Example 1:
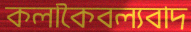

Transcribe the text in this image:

কলাকৈবল্যবাদ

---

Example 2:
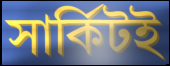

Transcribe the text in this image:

সার্কিটই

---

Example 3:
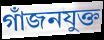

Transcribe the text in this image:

গাঁজনযুক্ত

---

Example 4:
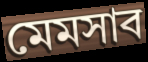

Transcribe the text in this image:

মেমসাব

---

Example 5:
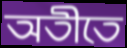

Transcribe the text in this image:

অতীতে